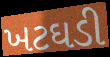
ખટઘડી